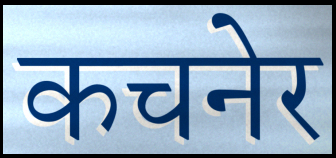
कचनेर